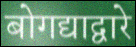
बोगद्याद्वारे